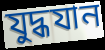
যুদ্ধযান